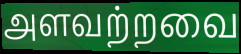
அளவற்றவை